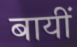
बायीं